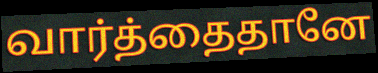
வார்த்தைதானே